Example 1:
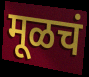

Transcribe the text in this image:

मूळचं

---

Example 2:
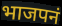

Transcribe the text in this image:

भाजपनं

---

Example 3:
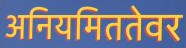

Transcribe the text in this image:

अनियमिततेवर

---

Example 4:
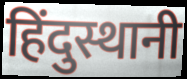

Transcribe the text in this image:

हिंदुस्थानी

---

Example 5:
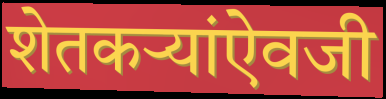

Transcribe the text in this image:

शेतकऱ्यांऐवजी